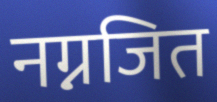
नग्नजित